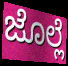
ಜೊಲ್ಲೆ